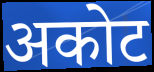
अकोट